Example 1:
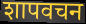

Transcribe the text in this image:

शापवचन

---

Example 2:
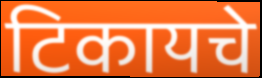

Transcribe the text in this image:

टिकायचे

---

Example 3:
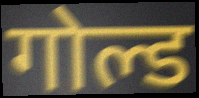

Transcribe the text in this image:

गोल्ड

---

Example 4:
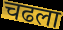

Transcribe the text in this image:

चढला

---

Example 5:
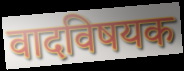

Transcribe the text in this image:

वादविषयक